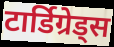
टार्डिग्रेड्स